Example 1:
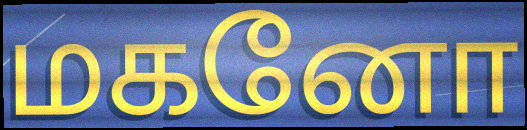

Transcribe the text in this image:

மகனோ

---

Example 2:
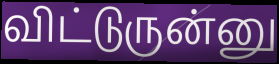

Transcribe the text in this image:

விட்டுருன்னு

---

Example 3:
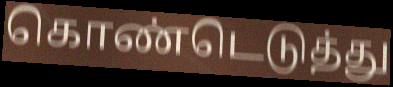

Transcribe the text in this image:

கொண்டெடுத்து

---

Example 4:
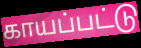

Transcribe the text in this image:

காயப்பட்டு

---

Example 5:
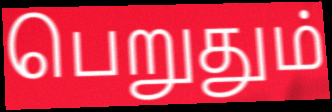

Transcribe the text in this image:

பெறுதும்